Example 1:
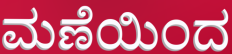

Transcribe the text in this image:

ಮಣೆಯಿಂದ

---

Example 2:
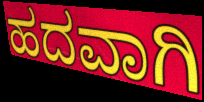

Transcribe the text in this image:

ಹದವಾಗಿ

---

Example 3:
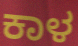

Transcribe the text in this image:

ಕಾಳ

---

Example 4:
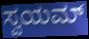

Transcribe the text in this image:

ಸ್ವಯಮ್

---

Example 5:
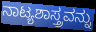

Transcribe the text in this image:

ನಾಟ್ಯಶಾಸ್ತ್ರವನ್ನು